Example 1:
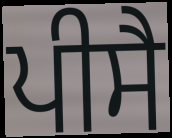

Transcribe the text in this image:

ਪੀਸੈ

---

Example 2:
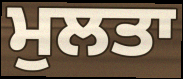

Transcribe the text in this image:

ਮੁਲਤਾ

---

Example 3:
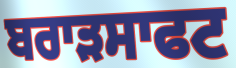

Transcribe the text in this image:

ਬਰਾੜਸਾਫਟ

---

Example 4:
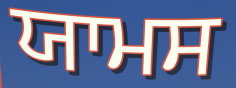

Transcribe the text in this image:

ਯਾਮਸ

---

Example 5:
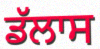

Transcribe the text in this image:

ਡੱਲਾਸ